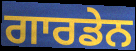
ਗਾਰਡੇਨ